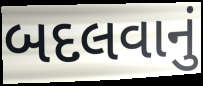
બદલવાનું